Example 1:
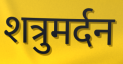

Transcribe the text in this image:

शत्रुमर्दन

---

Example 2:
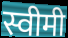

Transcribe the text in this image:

स्वीमी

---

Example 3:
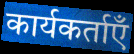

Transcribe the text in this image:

कार्यकर्ताएँ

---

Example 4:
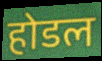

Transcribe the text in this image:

होडल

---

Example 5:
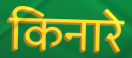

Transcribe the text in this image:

किनारे